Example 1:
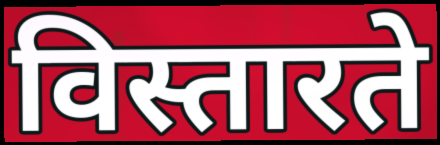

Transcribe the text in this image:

विस्तारते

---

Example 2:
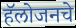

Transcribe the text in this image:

हॅलोजनचे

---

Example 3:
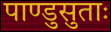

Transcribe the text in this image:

पाण्डुसुताः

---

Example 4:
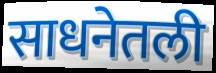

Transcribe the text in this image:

साधनेतली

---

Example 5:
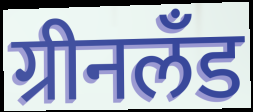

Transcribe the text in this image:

ग्रीनलँड